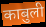
काबुली